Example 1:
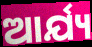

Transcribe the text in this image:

ଆର୍ଯ୍ୟ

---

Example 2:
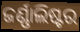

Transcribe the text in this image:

ଜର୍ଣ୍ଣାଲିଷ୍ଟର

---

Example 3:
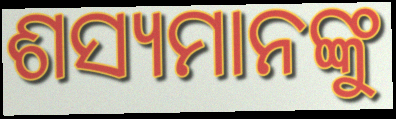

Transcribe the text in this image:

ଶସ୍ୟମାନଙ୍କୁ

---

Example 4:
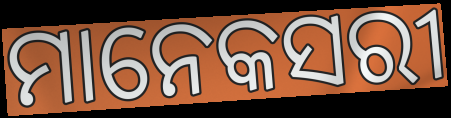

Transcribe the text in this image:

ମାନେକସରୀ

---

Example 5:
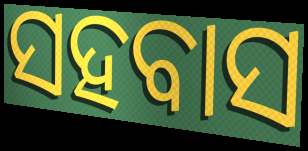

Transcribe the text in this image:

ସହବାସ